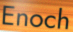
Enoch